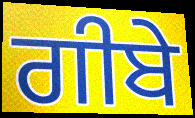
ਗੀਬੇ